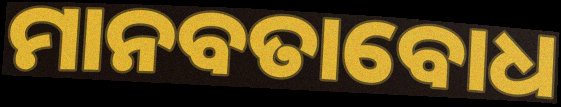
ମାନବତାବୋଧ